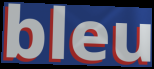
bleu